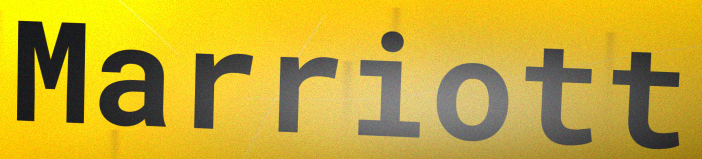
Marriott